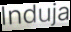
Induja